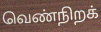
வெண்நிறக்